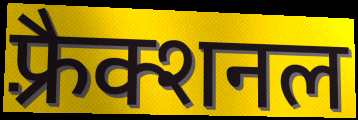
फ़्रैक्शनल